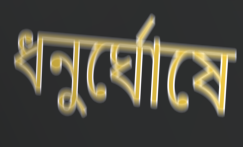
ধনুর্ঘোষে